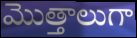
మొత్తాలుగా